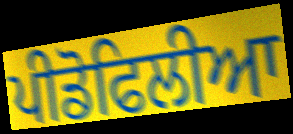
ਪੀਡੋਫਿਲੀਆ